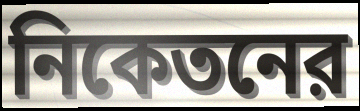
নিকেতনের